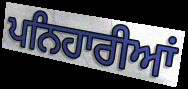
ਪਨਿਹਾਰੀਆਂ